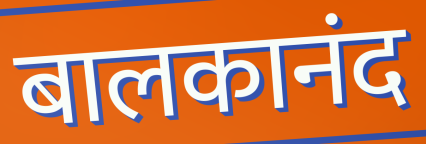
बालकानंद